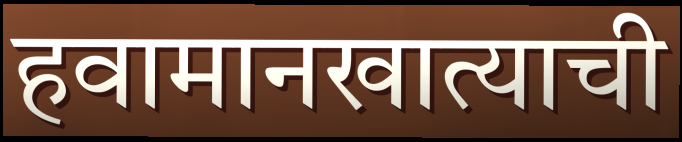
हवामानखात्याची